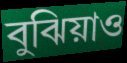
বুঝিয়াও